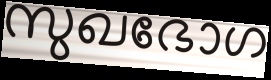
സുഖഭോഗ